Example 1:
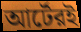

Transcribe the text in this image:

আর্টেরই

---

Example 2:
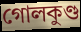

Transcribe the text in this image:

গোলকুণ্ড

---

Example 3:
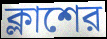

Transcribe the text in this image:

ক্লাশের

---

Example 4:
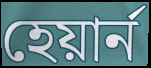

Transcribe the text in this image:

হেয়ার্ন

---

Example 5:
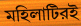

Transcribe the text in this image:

মহিলাটিরই